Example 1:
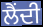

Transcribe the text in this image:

ਲੈਂਦੀ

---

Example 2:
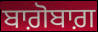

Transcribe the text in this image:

ਬਾਗ਼ੋਬਾਗ਼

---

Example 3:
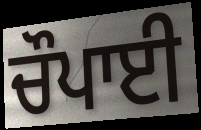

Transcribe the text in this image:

ਚੌਪਾਈ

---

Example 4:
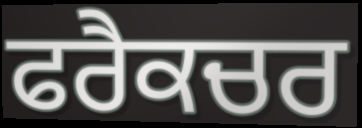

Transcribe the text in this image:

ਫਰੈਕਚਰ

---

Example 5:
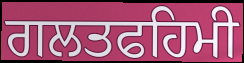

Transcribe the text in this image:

ਗਲਤਫਹਿਮੀ